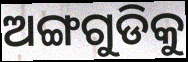
ଅଙ୍ଗଗୁଡିକୁ